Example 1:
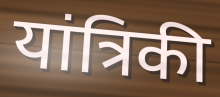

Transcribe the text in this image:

यांत्रिकी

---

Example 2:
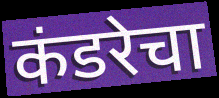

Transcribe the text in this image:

कंडरेचा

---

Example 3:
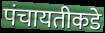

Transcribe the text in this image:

पंचायतीकडे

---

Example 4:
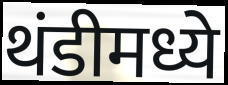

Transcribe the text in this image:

थंडीमध्ये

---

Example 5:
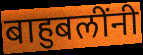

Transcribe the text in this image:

बाहुबलींनी